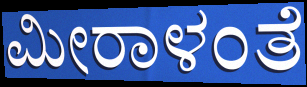
ಮೀರಾಳಂತೆ